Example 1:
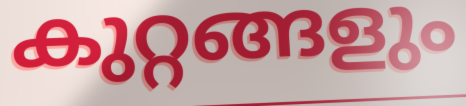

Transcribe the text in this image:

കുറ്റങ്ങളും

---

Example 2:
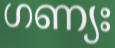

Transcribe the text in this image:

ഗണ്യഃ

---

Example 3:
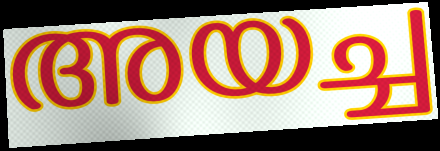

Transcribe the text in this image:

അയച്ച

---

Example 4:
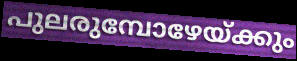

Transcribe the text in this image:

പുലരുമ്പോഴേയ്ക്കും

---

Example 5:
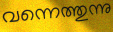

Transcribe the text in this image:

വന്നെത്തുന്നു